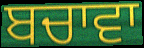
ਬਚਾਵਾ